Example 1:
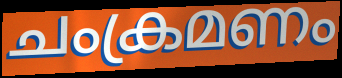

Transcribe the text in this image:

ചംക്രമണം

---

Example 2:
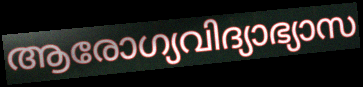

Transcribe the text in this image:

ആരോഗ്യവിദ്യാഭ്യാസ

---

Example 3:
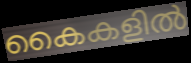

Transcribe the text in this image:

കൈകളിൽ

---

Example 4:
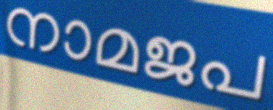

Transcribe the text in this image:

നാമജപ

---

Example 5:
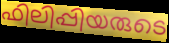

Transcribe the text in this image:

ഫിലിപ്പിയരുടെ